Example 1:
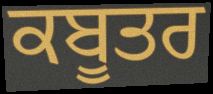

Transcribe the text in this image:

ਕਬੂਤਰ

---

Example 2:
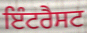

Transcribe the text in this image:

ਇੰਟਰੈਸਟ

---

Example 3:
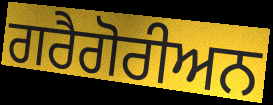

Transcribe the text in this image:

ਗਰੈਗੋਰੀਅਨ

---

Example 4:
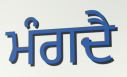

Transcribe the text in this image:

ਮੰਗਦੈ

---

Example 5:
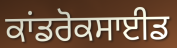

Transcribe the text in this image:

ਕਾਂਡਰੋਕਸਾਈਡ